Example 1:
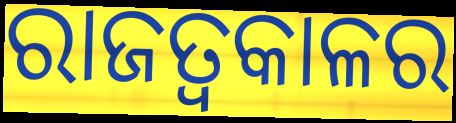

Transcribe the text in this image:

ରାଜତ୍ୱକାଳର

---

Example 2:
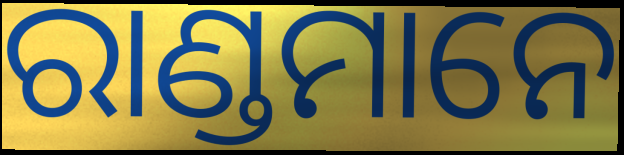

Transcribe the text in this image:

ରାଣ୍ଡମାନେ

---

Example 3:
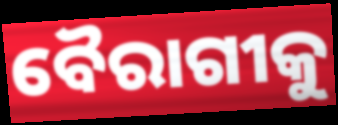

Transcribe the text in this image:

ବୈରାଗୀକୁ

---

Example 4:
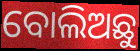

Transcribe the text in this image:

ବୋଲିଅଛୁ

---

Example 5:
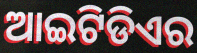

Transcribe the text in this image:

ଆଇଟିଡିଏର